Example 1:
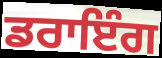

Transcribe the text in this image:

ਡਰਾਇੰਗ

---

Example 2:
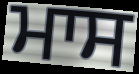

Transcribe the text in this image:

ਮਾਸ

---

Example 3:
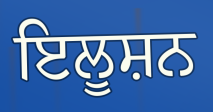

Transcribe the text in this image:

ਇਲੂਸ਼ਨ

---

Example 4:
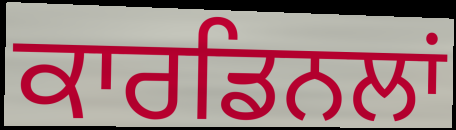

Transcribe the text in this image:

ਕਾਰਡਿਨਲਾਂ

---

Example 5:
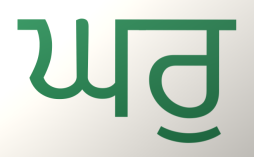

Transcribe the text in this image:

ਘਰੁ